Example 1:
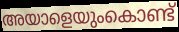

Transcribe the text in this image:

അയാളെയുംകൊണ്ട്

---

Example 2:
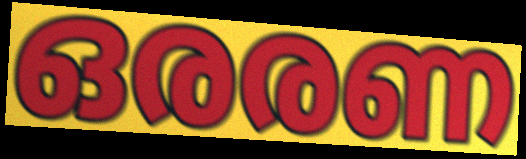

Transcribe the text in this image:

ഒരരണ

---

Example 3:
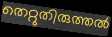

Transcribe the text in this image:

തെറ്റുതിരുത്തൽ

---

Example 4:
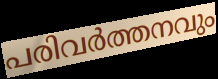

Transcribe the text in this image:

പരിവർത്തനവും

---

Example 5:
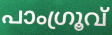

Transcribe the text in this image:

പാംഗ്രൂവ്